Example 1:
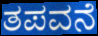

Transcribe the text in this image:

ತಪವನೆ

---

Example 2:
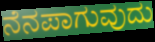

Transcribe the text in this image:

ನೆನಪಾಗುವುದು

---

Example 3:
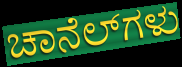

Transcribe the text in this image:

ಚಾನೆಲ್‌ಗಳು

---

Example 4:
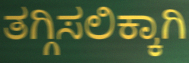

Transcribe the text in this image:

ತಗ್ಗಿಸಲಿಕ್ಕಾಗಿ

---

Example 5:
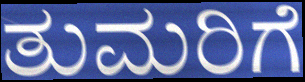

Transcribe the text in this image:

ತುಮರಿಗೆ